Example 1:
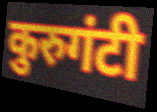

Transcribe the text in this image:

कुरुगंटी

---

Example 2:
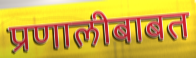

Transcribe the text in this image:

प्रणालीबाबत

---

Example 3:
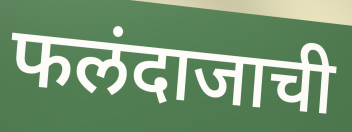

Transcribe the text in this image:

फलंदाजाची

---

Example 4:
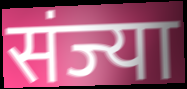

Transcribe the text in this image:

संज्या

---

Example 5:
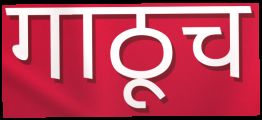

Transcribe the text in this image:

गाठूच